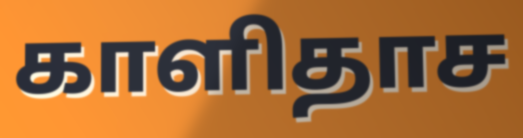
காளிதாச